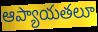
ఆప్యాయతలూ